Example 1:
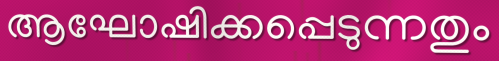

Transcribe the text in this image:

ആഘോഷിക്കപ്പെടുന്നതും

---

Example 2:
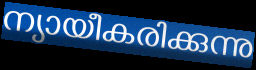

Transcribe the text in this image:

ന്യായീകരിക്കുന്നു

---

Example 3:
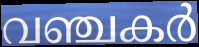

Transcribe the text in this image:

വഞ്ചകർ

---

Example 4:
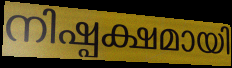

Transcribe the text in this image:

നിഷ്പക്ഷമായി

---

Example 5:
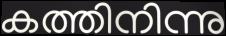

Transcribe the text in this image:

കത്തിനിന്നു